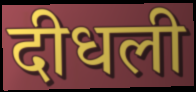
दीधली